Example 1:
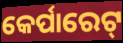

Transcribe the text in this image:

କେର୍ପାରେଟ୍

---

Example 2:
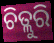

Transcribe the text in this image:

ଚିତ୍ଲୁରି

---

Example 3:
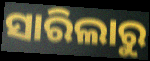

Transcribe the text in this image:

ସାରିଲାରୁ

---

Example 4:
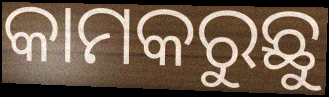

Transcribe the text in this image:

କାମକରୁଛୁ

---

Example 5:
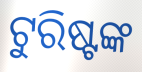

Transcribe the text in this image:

ଟୁରିଷ୍ଟଙ୍କ